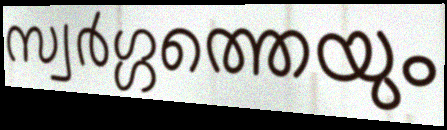
സ്വർഗ്ഗത്തെയും